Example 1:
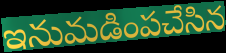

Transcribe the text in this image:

ఇనుమడింపచేసిన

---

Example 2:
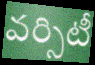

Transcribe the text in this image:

వర్సిటీ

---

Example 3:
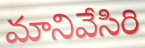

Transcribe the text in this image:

మానివేసిరి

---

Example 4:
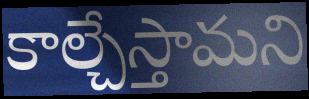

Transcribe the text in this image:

కాల్చేస్తామని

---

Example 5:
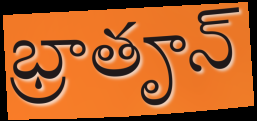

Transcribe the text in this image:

భ్రాతౄన్